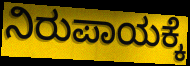
ನಿರುಪಾಯಕ್ಕೆ